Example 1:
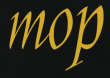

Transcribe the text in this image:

mop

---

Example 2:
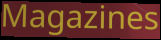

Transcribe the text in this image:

Magazines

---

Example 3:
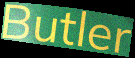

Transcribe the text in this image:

Butler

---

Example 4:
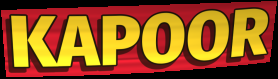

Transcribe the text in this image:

KAPOOR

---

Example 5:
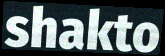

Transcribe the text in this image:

shakto